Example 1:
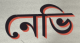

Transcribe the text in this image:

নেভি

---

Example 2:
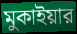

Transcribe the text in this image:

মুকাইয়ার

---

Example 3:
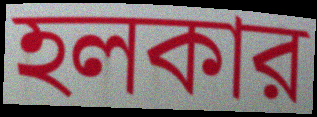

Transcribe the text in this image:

হলকার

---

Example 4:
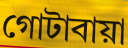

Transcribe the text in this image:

গোটাবায়া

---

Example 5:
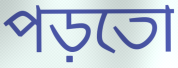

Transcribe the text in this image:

পড়তো